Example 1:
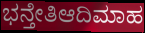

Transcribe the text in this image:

ಭನ್ತೇತಿಆದಿಮಾಹ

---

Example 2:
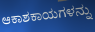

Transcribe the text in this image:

ಆಕಾಶಕಾಯಗಳನ್ನು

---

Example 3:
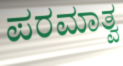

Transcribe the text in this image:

ಪರಮಾತ್ವ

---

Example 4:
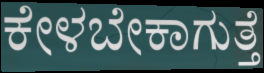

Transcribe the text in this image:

ಕೇಳಬೇಕಾಗುತ್ತೆ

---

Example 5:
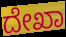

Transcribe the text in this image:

ದೇಖಾ